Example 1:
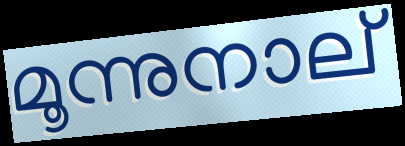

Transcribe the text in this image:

മൂന്നുനാല്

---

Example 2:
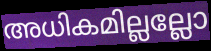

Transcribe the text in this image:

അധികമില്ലല്ലോ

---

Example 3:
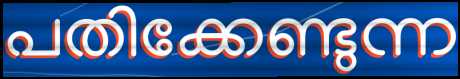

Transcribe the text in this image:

പതിക്കേണ്ടുന്ന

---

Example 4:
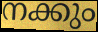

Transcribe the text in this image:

നക്കും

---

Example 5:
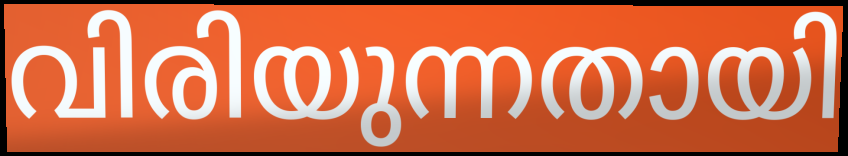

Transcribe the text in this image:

വിരിയുന്നതായി